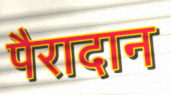
पैरादान